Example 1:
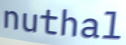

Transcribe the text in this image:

nuthal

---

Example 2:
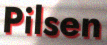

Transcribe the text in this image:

Pilsen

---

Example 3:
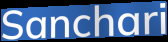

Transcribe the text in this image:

Sanchari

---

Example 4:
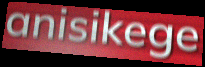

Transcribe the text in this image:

anisikege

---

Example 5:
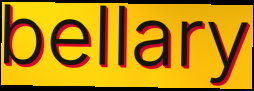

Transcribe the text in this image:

bellary